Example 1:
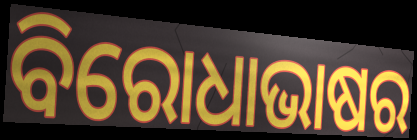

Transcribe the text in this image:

ବିରୋଧାଭାଷର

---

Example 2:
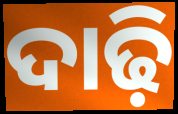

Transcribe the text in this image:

ଦାଢ଼ି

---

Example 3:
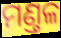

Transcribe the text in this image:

ମଣ୍ତଳ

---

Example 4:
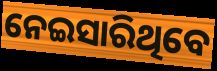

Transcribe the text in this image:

ନେଇସାରିଥିବେ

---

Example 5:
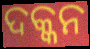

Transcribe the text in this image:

ଦକ୍କନ